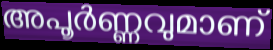
അപൂർണ്ണവുമാണ്